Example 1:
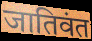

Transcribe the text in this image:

जातिवंत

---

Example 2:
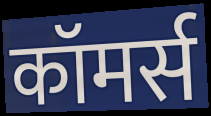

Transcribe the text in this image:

कॉमर्स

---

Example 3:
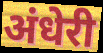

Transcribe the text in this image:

अंधेरी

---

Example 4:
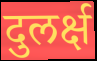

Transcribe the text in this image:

दुलर्क्ष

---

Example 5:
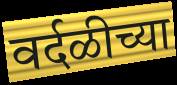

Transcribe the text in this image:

वर्दळीच्या